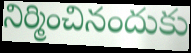
నిర్మించినందుకు